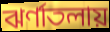
ঝর্ণাতলায়